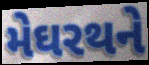
મેઘરથને